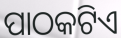
ପାଠକଟିଏ